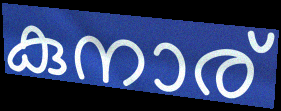
കുനാര്